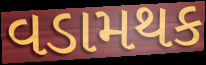
વડામથક